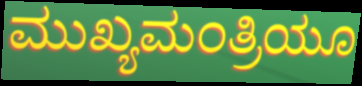
ಮುಖ್ಯಮಂತ್ರಿಯೂ